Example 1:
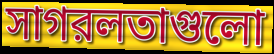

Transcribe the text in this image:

সাগরলতাগুলো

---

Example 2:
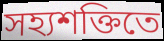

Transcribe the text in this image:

সহ্যশক্তিতে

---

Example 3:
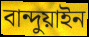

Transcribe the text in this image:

বান্দুয়াইন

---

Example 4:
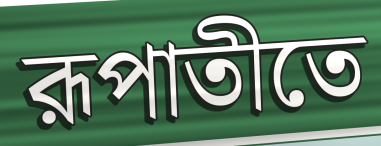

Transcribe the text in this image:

রূপাতীতে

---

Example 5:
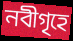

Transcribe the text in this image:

নবীগৃহে